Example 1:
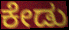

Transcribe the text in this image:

ಕೇಡು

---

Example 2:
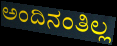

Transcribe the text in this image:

ಅಂದಿನಂತಿಲ್ಲ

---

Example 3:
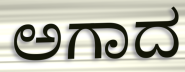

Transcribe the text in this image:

ಅಗಾದ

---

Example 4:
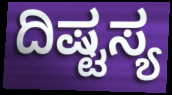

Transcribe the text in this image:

ದಿಷ್ಟಸ್ಯ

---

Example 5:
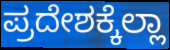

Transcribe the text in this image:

ಪ್ರದೇಶಕ್ಕೆಲ್ಲಾ